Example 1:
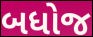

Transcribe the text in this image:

બધોજ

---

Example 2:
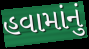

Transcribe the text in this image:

હવામાંનું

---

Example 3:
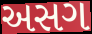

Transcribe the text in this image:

અસગ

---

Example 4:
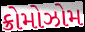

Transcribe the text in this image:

ક્રોમોઝોમ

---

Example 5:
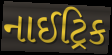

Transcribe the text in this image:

નાઈટ્રિક